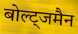
बोल्ट्जमैन